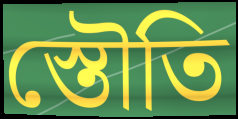
স্তৌতি